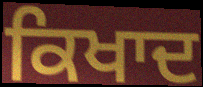
ਕਿਖਾਦ